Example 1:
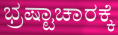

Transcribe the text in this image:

ಭ್ರಷ್ಟಾಚಾರಕ್ಕೆ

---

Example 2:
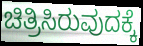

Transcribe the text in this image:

ಚಿತ್ರಿಸಿರುವುದಕ್ಕೆ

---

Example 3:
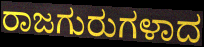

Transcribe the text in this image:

ರಾಜಗುರುಗಳಾದ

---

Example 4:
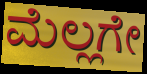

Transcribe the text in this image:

ಮೆಲ್ಲಗೇ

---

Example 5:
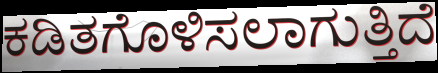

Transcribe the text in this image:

ಕಡಿತಗೊಳಿಸಲಾಗುತ್ತಿದೆ